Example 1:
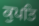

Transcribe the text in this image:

ਕੁਪਤਿ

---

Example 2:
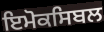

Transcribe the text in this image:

ਇਮੋਕਸਿਬਲ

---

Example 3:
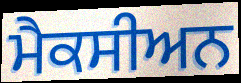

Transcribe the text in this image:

ਮੈਕਸੀਅਨ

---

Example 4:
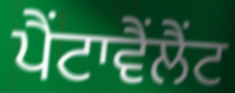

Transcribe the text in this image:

ਪੈਂਟਾਵੈਂਲੈਂਟ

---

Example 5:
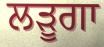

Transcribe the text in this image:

ਲੜੂਗਾ